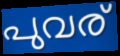
പുവര്